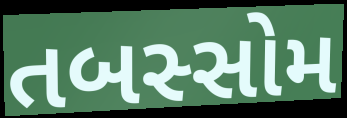
તબસ્સોમ